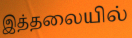
இத்தலையில்